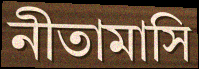
নীতামাসি